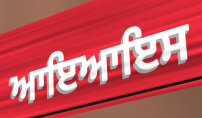
ਆਇਆਇਸ